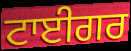
ਟਾਈਗਰ